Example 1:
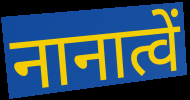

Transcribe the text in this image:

नानात्वें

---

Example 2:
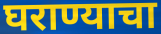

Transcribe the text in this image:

घराण्याचा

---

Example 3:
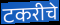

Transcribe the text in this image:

टकरीचे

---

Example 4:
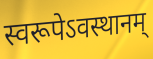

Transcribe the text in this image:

स्वरूपेऽवस्थानम्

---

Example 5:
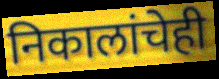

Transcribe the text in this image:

निकालांचेही